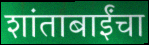
शांताबाईंचा